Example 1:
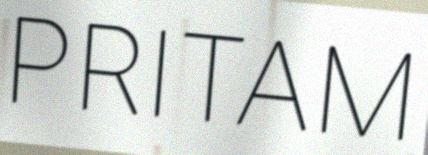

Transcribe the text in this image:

PRITAM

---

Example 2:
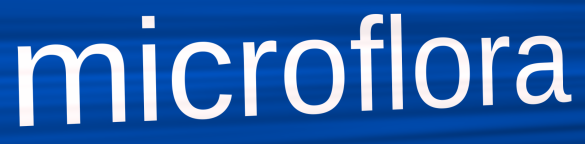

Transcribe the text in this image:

microflora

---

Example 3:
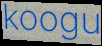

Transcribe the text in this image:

koogu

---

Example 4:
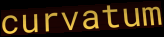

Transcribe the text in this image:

curvatum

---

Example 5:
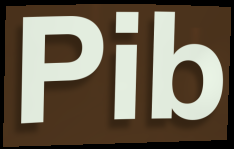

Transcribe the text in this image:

Pib